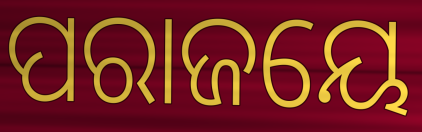
ପରାଜୟେ